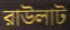
রাউলাট